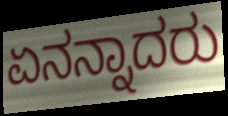
ಏನನ್ನಾದರು